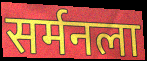
सर्मनला